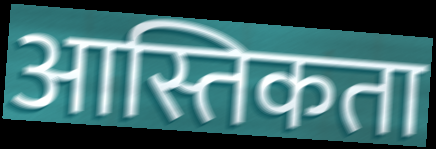
आस्तिकता